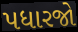
પધારજો